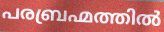
പരബ്രഹ്മത്തിൽ